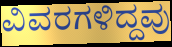
ವಿವರಗಳಿದ್ದವು